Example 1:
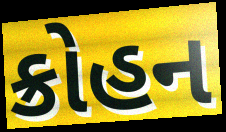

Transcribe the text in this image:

ક્રોહન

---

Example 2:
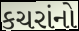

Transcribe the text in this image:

કચરાંનો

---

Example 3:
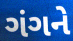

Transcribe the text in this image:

ગંગને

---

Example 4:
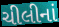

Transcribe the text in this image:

ચીલીનાં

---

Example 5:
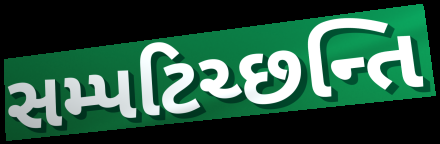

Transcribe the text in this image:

સમ્પટિચ્છન્તિ